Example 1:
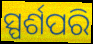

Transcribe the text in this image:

ସ୍ପର୍ଶପରି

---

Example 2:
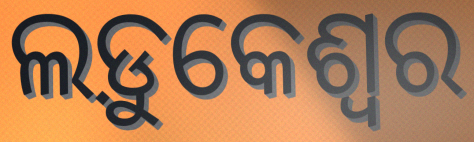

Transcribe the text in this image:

ଲଡ଼ୁକେଶ୍ୱର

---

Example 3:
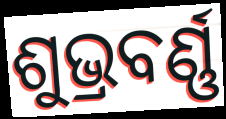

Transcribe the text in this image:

ଶୁଭ୍ରବର୍ଣ୍ଣ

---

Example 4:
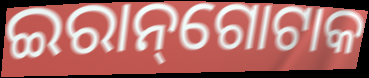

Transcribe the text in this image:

ଇରାନ୍‌ଗୋଟାକ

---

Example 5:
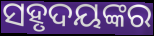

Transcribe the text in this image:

ସହୃଦୟଙ୍କର